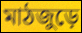
মাঠজুড়ে